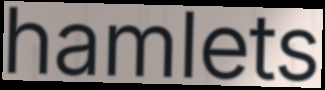
hamlets